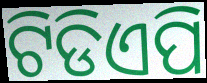
ଟିଡିଏପି